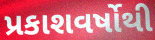
પ્રકાશવર્ષોથી